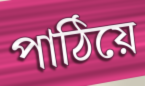
পাঠিয়ে